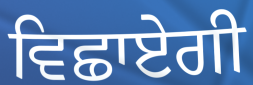
ਵਿਛਾਏਗੀ